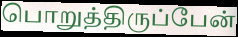
பொறுத்திருப்பேன்